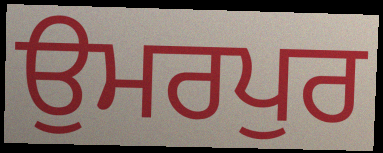
ਉਮਰਪੁਰ